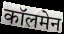
कॉलमेन